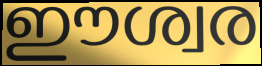
ഈശ്വര